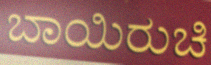
ಬಾಯಿರುಚಿ